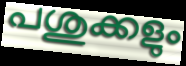
പശുക്കളും